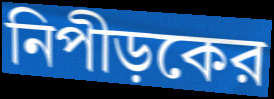
নিপীড়কের